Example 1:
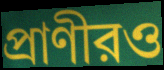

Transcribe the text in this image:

প্রাণীরও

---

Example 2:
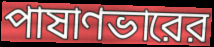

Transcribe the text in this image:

পাষাণভারের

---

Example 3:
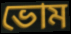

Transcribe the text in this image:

ভোম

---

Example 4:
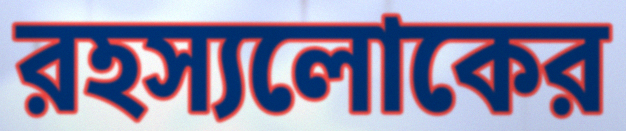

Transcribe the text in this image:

রহস্যলোকের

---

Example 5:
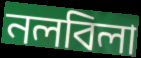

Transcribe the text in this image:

নলবিলা